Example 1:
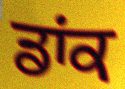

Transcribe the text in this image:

ਡਾਂਕ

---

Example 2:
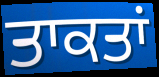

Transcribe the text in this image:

ਤਾਕਤਾਂ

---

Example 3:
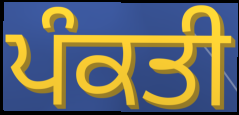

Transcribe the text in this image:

ਪੰਕਤੀ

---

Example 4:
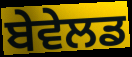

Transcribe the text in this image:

ਬੇਵੇਲਡ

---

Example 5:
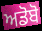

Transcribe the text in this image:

ਅਡੋਬੋ